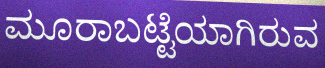
ಮೂರಾಬಟ್ಟೆಯಾಗಿರುವ